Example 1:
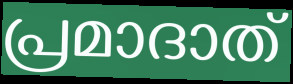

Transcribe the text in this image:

പ്രമാദാത്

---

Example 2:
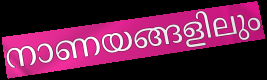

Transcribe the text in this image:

നാണയങ്ങളിലും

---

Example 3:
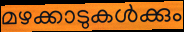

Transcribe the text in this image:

മഴക്കാടുകൾക്കും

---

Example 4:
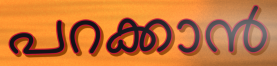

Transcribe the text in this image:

പറക്കാൻ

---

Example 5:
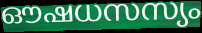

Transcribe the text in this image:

ഔഷധസസ്യം